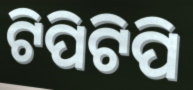
ଟିପିଟିପି